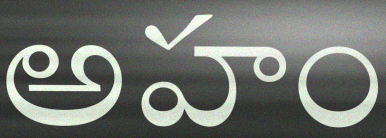
అహం